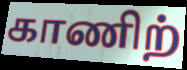
காணிற்